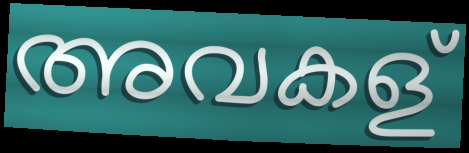
അവകള്